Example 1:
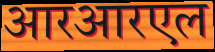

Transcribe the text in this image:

आरआरएल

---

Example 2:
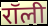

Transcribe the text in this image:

रॉली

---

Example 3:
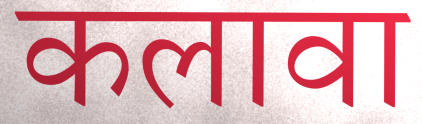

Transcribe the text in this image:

कलावा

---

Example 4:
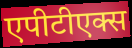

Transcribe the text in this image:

एपीटीएक्स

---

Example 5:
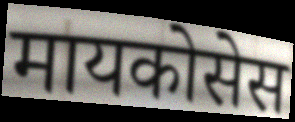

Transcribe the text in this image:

मायकोसेस